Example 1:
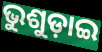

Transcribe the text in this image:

ଭୁଶୁଡ଼ାଇ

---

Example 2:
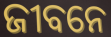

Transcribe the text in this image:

ଜୀବନେ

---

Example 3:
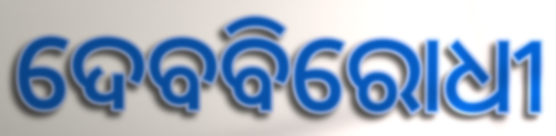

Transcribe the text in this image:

ଦେବବିରୋଧୀ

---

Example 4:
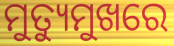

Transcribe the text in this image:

ମୁତ୍ୟୁମୁଖରେ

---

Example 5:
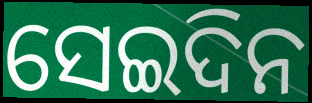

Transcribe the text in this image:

ସେଇଦିନ